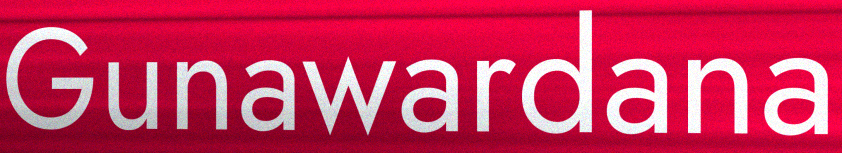
Gunawardana